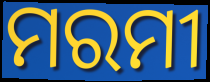
ମରମୀ